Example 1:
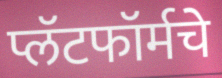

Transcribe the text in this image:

प्लॅटफॉर्मचे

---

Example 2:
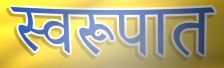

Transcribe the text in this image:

स्वरूपात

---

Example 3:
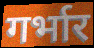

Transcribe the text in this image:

गर्भार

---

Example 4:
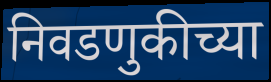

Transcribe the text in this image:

निवडणुकीच्या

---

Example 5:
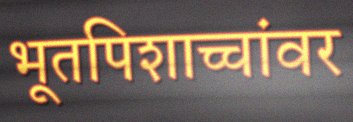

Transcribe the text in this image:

भूतपिशाच्चांवर